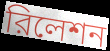
রিলেশন